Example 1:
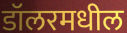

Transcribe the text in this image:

डॉलरमधील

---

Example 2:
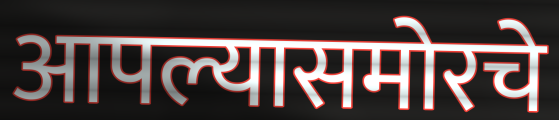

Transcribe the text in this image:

आपल्यासमोरचे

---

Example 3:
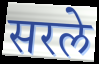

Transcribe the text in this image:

सरले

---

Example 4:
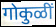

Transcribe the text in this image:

गोकुळीं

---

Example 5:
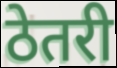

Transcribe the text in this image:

ठेतरी